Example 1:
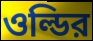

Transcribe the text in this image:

ওল্ডির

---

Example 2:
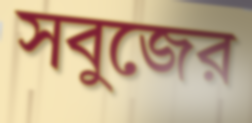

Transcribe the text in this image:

সবুজের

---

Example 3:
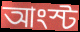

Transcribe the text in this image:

আংস্ট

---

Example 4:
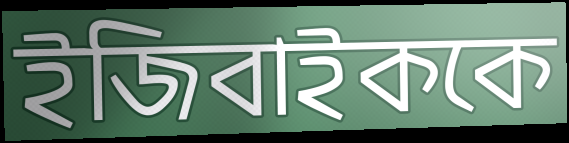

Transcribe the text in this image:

ইজিবাইককে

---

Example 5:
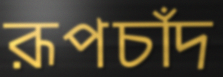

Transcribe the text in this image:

রূপচাঁদ